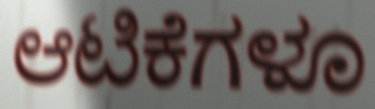
ಆಟಿಕೆಗಳೂ